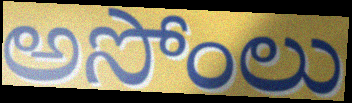
అసోంలు